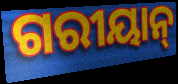
ଗରୀୟାନ୍